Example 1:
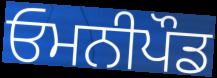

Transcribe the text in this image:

ਓਮਨੀਪੌਡ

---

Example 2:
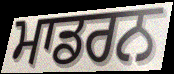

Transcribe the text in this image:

ਮਾਡਰਨ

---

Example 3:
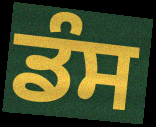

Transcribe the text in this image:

ਡੰਸ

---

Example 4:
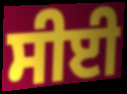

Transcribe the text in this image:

ਸੀਈ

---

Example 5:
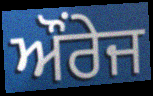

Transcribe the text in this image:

ਔਂਰੇਜ